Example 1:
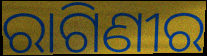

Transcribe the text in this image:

ରାଗିଣୀର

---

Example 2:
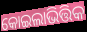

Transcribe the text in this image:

କୋଇଲାଭିତ୍ତିକ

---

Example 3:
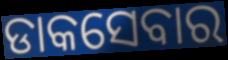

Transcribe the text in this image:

ଡାକସେବାର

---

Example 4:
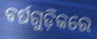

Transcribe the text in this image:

ବର୍ଷଗୁଡ଼ିକରେ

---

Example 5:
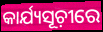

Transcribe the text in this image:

କାର୍ଯ୍ୟସୂଚ଼ୀରେ